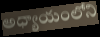
అధ్యాయంలోని